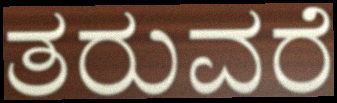
ತರುವರೆ